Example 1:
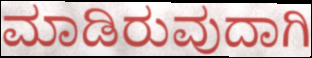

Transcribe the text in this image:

ಮಾಡಿರುವುದಾಗಿ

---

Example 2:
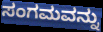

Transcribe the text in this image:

ಸಂಗಮವನ್ನು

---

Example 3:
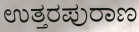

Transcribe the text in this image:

ಉತ್ತರಪುರಾಣ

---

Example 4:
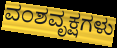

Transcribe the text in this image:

ವಂಶವೃಕ್ಷಗಳು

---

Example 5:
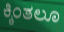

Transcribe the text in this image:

ಕ್ಕಿಂತಲೂ